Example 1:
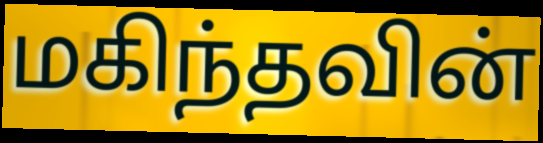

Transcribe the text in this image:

மகிந்தவின்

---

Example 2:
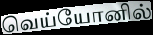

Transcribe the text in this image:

வெய்யோனில்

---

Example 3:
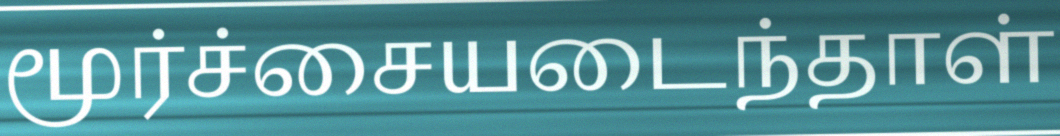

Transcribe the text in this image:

மூர்ச்சையடைந்தாள்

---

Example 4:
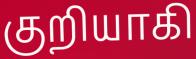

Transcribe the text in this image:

குறியாகி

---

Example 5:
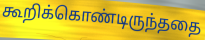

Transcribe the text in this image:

கூறிக்கொண்டிருந்ததை